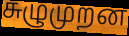
சுழுமுறன